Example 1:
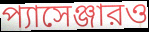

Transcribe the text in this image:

প্যাসেঞ্জারও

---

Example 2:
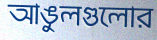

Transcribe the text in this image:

আঙুলগুলোর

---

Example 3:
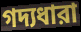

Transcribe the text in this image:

গদ্যধারা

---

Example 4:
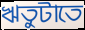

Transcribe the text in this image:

ঋতুটাতে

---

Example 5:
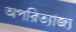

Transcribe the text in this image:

অপরিত্যাজ্য